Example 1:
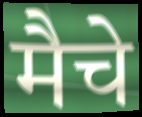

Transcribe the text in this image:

मैचे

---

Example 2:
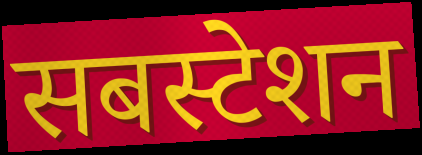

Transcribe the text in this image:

सबस्टेशन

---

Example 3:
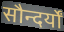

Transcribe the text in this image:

सौन्दर्यों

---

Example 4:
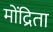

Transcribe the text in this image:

मोंद्रिता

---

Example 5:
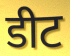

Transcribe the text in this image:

डीट